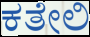
ಕತೇಲಿ